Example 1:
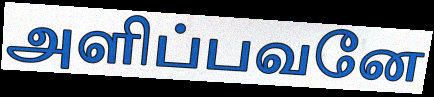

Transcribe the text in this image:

அளிப்பவனே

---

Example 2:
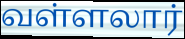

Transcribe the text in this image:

வள்ளலார்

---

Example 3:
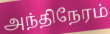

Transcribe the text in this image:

அந்திநேரம்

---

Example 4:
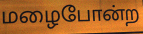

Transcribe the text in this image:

மழைபோன்ற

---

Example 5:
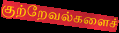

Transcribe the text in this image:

குற்றேவல்களைச்